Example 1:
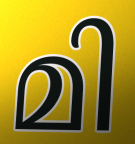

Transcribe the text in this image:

മി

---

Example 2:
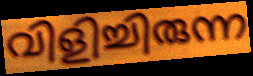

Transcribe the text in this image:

വിളിച്ചിരുന്ന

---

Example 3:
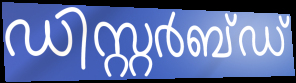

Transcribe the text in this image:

ഡിസ്റ്റർബ്ഡ്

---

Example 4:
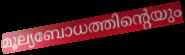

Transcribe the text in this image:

മൂല്യബോധത്തിന്റെയും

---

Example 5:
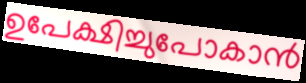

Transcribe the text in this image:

ഉപേക്ഷിച്ചുപോകാൻ